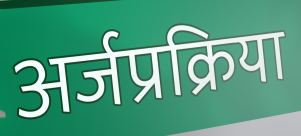
अर्जप्रक्रिया